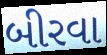
બીરવા